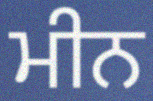
ਮੀਨ